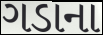
ગડાના